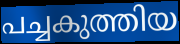
പച്ചകുത്തിയ